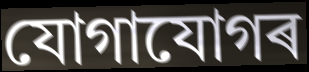
যোগাযোগৰ